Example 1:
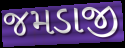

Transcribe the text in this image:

જમડાજી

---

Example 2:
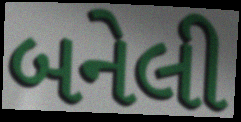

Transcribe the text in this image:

બનેલી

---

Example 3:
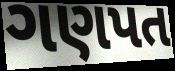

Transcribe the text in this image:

ગણપત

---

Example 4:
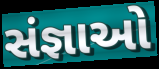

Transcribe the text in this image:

સંજ્ઞાઓ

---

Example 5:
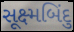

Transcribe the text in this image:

સૂક્ષ્મબિંદુ